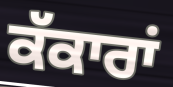
ਕੱਕਾਰਾਂ